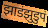
झाडंझुडुपं